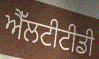
ਐੱਲਟੀਟੀਡੀ